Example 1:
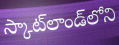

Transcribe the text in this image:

స్కాట్‌లాండ్‌లోని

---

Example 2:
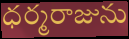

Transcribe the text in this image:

ధర్మరాజును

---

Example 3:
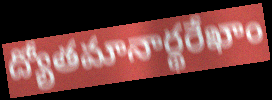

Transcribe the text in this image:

ద్యోతమానార్థరేఖాం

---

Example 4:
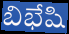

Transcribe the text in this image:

బిభేషి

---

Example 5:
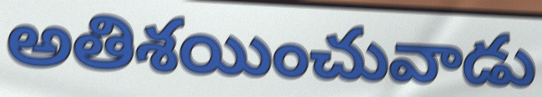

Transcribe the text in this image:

అతిశయించువాడు